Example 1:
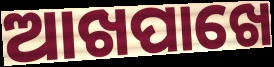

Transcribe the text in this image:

ଆଖପାଖେ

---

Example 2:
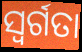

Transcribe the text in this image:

ସ୍ବର୍ଗତା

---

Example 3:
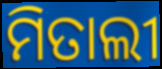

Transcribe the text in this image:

ମିତାଲୀ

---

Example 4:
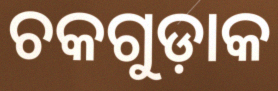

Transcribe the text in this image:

ଚକଗୁଡ଼ାକ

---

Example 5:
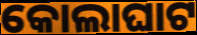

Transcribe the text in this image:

କୋଲାଘାଟ